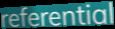
referential